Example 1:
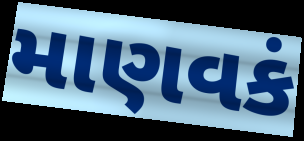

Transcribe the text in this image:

માણવકં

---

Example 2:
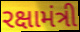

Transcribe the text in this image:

રક્ષામંત્રી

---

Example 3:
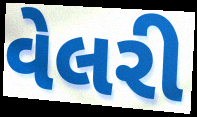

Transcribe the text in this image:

વેલરી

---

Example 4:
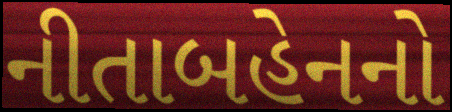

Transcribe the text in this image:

નીતાબહેનનો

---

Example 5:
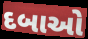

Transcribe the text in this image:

દબાઓ